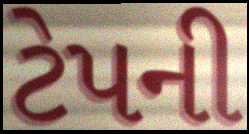
ટેપની